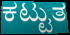
ಕಟ್ಟುತ